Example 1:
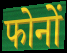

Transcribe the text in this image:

फोनों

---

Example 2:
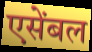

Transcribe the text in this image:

एसेंबल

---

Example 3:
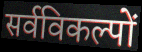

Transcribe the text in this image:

सर्वविकल्पों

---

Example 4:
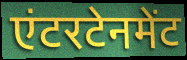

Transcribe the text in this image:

एंटरटेनमेंट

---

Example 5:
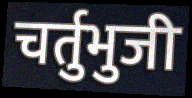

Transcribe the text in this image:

चर्तुभुजी